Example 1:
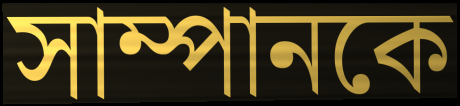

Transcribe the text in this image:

সাম্পানকে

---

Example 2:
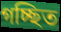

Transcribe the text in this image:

গচ্ছিত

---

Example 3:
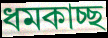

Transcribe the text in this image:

ধমকাচ্ছ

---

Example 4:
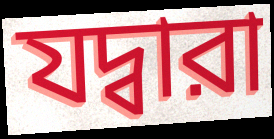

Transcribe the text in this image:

যদ্বারা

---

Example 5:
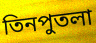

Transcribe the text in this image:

তিনপুতলা